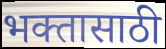
भक्तासाठी